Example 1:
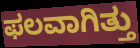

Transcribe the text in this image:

ಫಲವಾಗಿತ್ತು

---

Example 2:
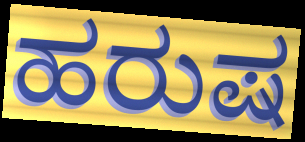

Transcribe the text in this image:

ಹರುಷ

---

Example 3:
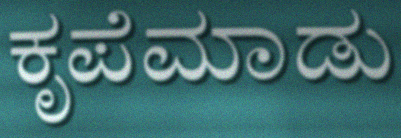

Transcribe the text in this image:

ಕೃಪೆಮಾಡು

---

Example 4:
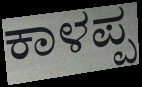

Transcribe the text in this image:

ಕಾಳಪ್ಪ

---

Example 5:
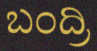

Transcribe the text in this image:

ಬಂದ್ರಿ